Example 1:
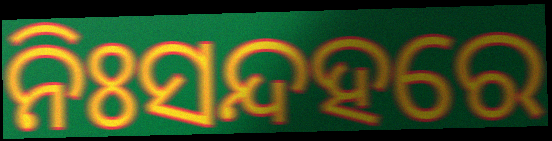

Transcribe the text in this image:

ନିଃସନ୍ଦହରେ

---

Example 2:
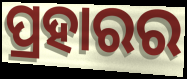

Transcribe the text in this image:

ପ୍ରହାରର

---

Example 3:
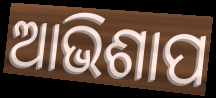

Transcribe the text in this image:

ଆଭିଶାପ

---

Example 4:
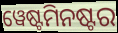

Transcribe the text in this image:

ୱେଷ୍ଟମିନଷ୍ଟର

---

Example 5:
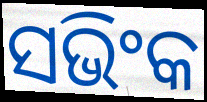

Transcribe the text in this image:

ସଭିଂକ